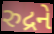
રુદ્રને